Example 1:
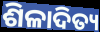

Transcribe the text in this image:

ଶିଳାଦିତ୍ୟ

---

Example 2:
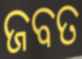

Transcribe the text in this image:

ଜବତ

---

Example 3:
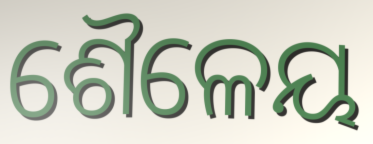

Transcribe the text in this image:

ଶୈଳେୟ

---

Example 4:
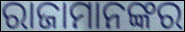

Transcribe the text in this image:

ରାଜାମାନଙ୍କର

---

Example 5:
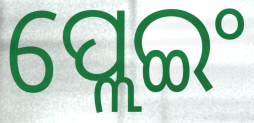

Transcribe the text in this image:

ପ୍ଲେଇଂ